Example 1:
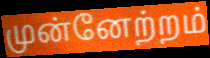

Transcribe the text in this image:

முன்னேற்றம்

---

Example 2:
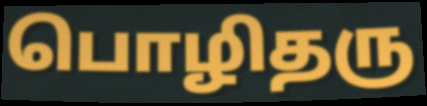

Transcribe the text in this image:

பொழிதரு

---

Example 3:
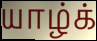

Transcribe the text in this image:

யாழ்க்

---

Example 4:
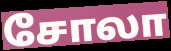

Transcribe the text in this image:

சோலா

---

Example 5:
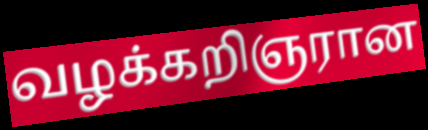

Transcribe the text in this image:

வழக்கறிஞரான